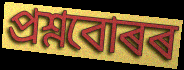
প্ৰশ্নবোৰৰ